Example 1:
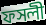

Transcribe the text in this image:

ফসলী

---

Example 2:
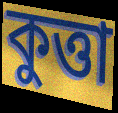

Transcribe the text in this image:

কুত্তা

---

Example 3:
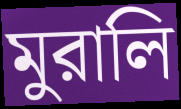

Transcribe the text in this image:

মুরালি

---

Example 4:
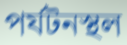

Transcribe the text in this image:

পর্যটনস্থল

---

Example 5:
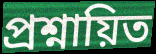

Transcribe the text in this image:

প্রশ্নায়িত